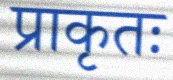
प्राकृतः